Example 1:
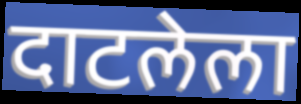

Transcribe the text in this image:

दाटलेला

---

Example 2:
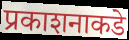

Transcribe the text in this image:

प्रकाशनाकडे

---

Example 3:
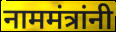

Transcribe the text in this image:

नाममंत्रांनी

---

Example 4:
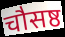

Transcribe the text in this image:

चौसष्ठ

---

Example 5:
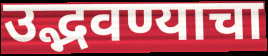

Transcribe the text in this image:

उद्भवण्याचा